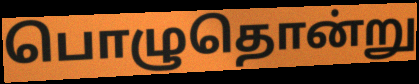
பொழுதொன்று